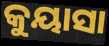
କୁୟାସା